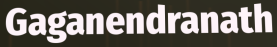
Gaganendranath